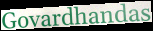
Govardhandas